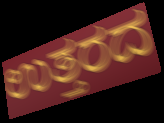
ಉತ್ತರದ